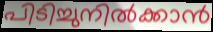
പിടിച്ചുനിൽക്കാൻ